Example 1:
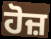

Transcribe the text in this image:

ਹੋਜ਼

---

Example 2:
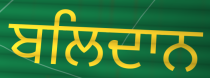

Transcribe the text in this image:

ਬਲਿਦਾਨ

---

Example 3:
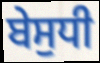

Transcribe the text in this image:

ਬੇਸੁਧੀ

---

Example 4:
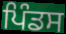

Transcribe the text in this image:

ਪਿੰਡਸ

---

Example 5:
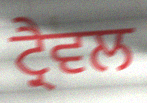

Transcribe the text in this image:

ਟ੍ਰੈਵਲ